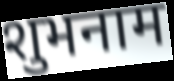
शुभनाम